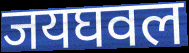
जयघवल